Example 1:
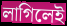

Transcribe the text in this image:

লাগিলেই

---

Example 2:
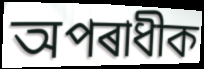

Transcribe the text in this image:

অপৰাধীক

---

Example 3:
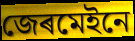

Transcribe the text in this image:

জেৰমেইনে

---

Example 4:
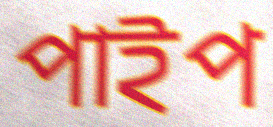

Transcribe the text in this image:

পাইপ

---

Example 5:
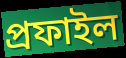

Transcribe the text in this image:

প্ৰফাইল